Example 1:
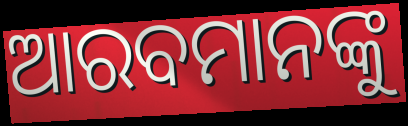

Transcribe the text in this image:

ଆରବମାନଙ୍କୁ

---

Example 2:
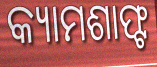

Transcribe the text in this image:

କ୍ୟାମଶାଫ୍ଟ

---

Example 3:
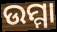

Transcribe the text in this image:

ଉମ୍ମା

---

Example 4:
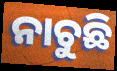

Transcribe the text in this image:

ନାଚୁଛି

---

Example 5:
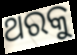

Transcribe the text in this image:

ଥରକୁ